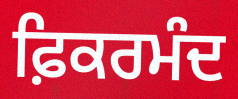
ਫ਼ਿਕਰਮੰਦ